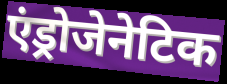
एंड्रोजेनेटिक